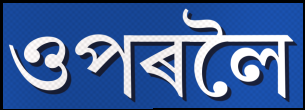
ওপৰলৈ